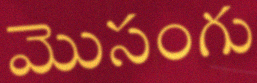
మొసంగు